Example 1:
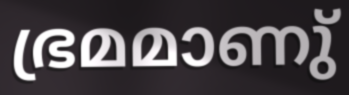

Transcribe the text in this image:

ഭ്രമമാണു്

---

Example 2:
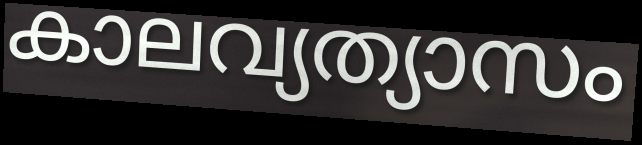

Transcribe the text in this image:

കാലവ്യത്യാസം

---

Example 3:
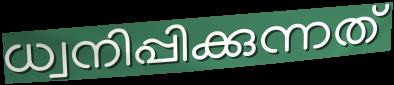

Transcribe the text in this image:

ധ്വനിപ്പിക്കുന്നത്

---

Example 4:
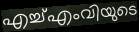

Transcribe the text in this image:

എച്ച്എംവിയുടെ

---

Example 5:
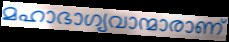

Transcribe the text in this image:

മഹാഭാഗ്യവാന്മാരാണ്